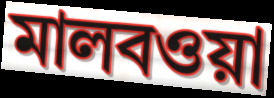
মালবওয়া